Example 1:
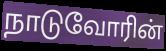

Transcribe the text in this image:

நாடுவோரின்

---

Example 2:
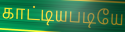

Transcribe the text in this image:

காட்டியபடியே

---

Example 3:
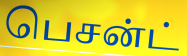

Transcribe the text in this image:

பெசன்ட்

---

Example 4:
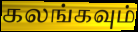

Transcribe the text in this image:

கலங்கவும்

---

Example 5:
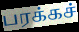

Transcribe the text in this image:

பரக்கச்